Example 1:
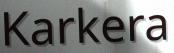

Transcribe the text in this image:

Karkera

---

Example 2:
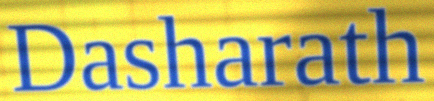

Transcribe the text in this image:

Dasharath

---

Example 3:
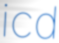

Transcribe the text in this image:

icd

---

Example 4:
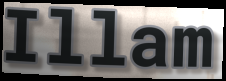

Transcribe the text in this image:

Illam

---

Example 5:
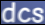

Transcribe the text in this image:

dcs